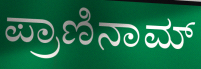
ಪ್ರಾಣಿನಾಮ್